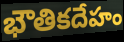
భౌతికదేహం